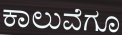
ಕಾಲುವೆಗೂ